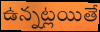
ఉన్నట్లయితే